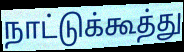
நாட்டுக்கூத்து